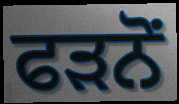
ਫੜਨੋਂ